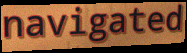
navigated